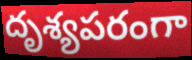
దృశ్యపరంగా